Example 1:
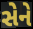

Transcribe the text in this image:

સેને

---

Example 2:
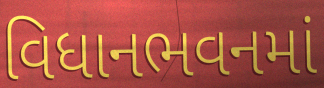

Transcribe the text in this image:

વિધાનભવનમાં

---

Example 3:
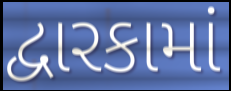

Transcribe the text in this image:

દ્વારકામાં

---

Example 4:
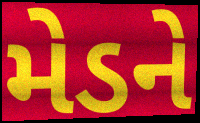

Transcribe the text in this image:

મેડને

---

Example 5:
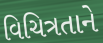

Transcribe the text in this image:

વિચિત્રતાને